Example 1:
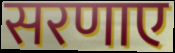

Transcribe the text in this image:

सरणाए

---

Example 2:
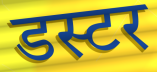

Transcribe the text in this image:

डस्टर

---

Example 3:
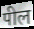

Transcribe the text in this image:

पील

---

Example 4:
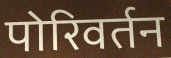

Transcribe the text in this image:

पोरिवर्तन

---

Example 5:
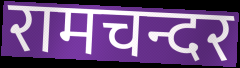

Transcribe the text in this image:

रामचन्दर